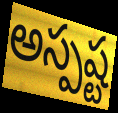
అస్పష్ట